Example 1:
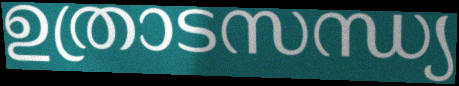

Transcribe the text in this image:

ഉത്രാടസന്ധ്യ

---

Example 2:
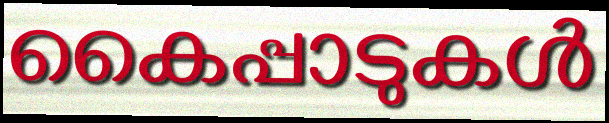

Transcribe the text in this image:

കൈപ്പാടുകൾ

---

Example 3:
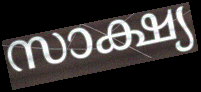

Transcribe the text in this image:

സാക്ഷ്യ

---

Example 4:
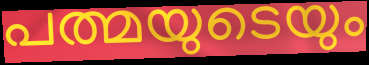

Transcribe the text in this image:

പത്മയുടെയും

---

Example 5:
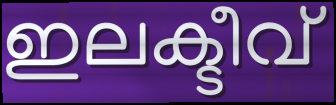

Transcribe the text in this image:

ഇലക്ടീവ്